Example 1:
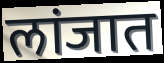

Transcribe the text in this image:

लांजात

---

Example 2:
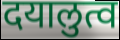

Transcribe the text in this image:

दयालुत्व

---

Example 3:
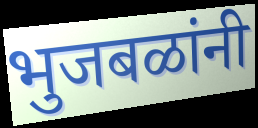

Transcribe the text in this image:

भुजबळांनी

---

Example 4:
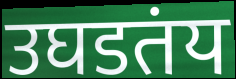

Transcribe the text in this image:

उघडतंय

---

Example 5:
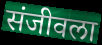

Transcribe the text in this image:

संजीवला